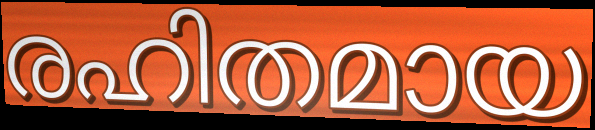
രഹിതമായ